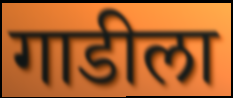
गाडीला